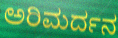
ಅರಿಮರ್ದನ